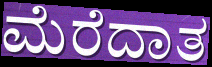
ಮೆರೆದಾತ